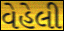
વેહેલી